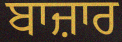
ਬਾਜ਼ਾਰ